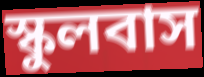
স্কুলবাস